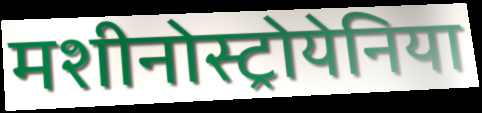
मशीनोस्ट्रोयेनिया